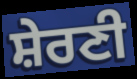
ਸ਼ੇਰਣੀ